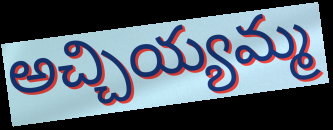
అచ్చియ్యమ్మ